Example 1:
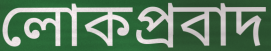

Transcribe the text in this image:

লোকপ্রবাদ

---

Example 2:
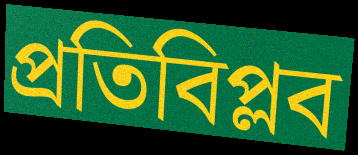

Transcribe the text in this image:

প্রতিবিপ্লব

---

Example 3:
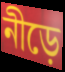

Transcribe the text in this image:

নীড়ে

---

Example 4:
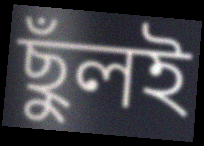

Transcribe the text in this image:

ছুঁলই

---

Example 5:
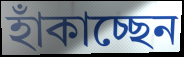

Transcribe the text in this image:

হাঁকাচ্ছেন